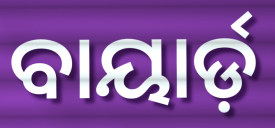
ବାୟାର୍ଡ଼